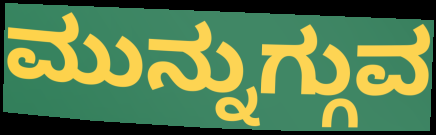
ಮುನ್ನುಗ್ಗುವ